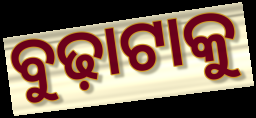
ବୁଢ଼ାଟାକୁ